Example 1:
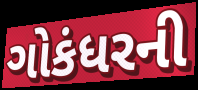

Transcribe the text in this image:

ગોકંધરની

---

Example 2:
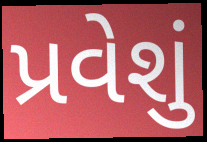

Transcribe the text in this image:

પ્રવેશું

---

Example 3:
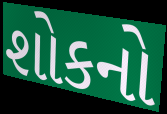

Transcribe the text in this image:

શોકનો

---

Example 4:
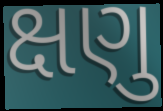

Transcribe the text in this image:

ક્ષણુ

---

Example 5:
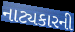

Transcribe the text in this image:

નાટ્યકારની